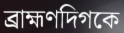
ব্রাহ্মণদিগকে